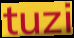
tuzi